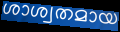
ശാശ്വതമായ